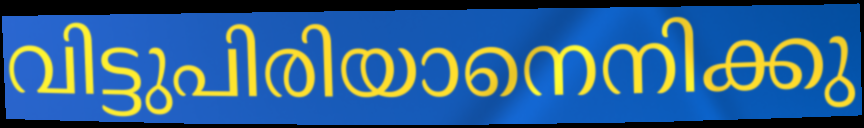
വിട്ടുപിരിയാനെനിക്കു